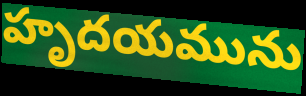
హృదయమును